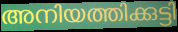
അനിയത്തിക്കുട്ടി